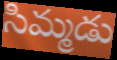
సిమ్మడు